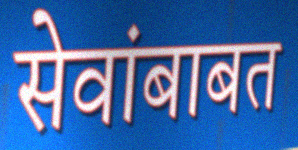
सेवांबाबत